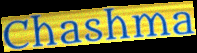
Chashma